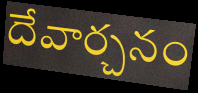
దేవార్చనం